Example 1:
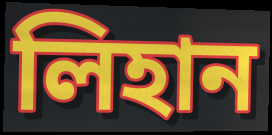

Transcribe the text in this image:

লিহান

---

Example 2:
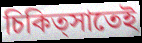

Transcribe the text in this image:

চিকিত্সাতেই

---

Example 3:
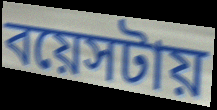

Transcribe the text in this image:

বয়েসটায়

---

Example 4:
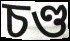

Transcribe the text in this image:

চণ্ড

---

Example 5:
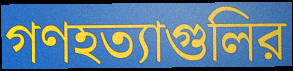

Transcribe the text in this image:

গণহত্যাগুলির